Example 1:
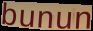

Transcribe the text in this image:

bunun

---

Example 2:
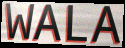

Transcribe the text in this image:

WALA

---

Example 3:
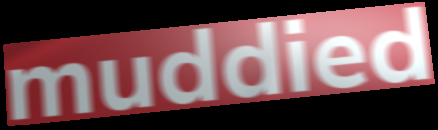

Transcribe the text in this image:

muddied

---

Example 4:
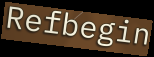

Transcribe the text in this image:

Refbegin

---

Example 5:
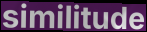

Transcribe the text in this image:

similitude